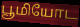
பூமியோட